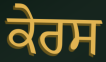
ਕੇਰਸ